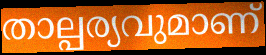
താല്പര്യവുമാണ്